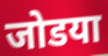
जोडया